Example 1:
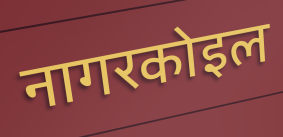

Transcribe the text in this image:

नागरकोइल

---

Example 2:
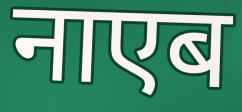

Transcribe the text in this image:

नाएब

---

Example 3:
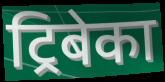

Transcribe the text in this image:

ट्रिबेका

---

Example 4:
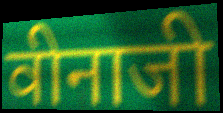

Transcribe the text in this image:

वीनाजी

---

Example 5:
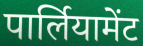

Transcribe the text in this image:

पार्लियामेंट